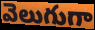
వెలుగుగా